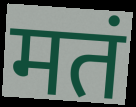
मतं